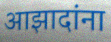
आझादांना